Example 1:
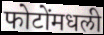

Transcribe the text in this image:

फोटोंमधली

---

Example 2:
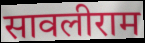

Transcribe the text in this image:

सावलीराम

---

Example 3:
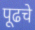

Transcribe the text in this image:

पूढचे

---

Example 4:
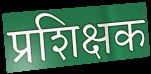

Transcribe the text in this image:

प्रशिक्षक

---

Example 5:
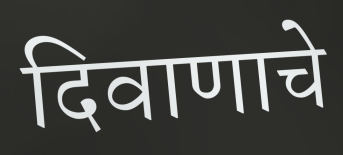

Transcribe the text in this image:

दिवाणाचे